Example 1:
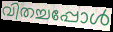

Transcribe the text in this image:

വിതച്ചപ്പോൾ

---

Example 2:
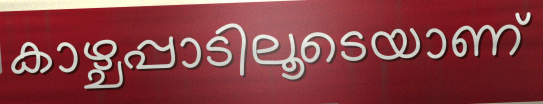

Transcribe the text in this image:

കാഴ്ചപ്പാടിലൂടെയാണ്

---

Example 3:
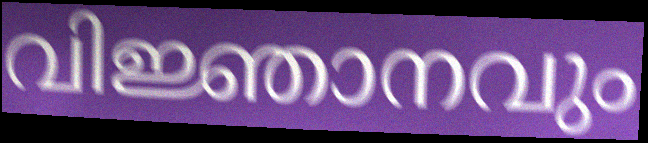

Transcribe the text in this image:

വിജ്ഞാനവും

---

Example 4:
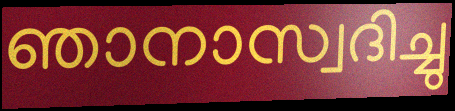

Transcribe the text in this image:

ഞാനാസ്വദിച്ചു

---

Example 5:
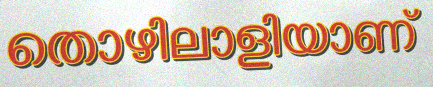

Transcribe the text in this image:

തൊഴിലാളിയാണ്